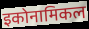
इकोनामिकल